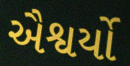
ઐશ્વર્યો